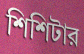
শিশিটার